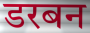
डरबन